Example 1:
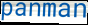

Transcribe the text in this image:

panman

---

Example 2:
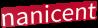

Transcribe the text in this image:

nanicent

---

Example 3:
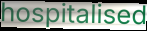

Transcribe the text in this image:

hospitalised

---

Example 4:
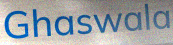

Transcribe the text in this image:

Ghaswala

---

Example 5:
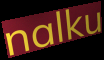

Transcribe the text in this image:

nalku